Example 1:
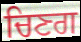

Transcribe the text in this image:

ਚਿਣਗ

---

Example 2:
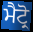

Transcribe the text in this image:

ਮੈਟ੍ਰੋ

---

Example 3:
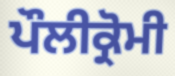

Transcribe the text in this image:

ਪੌਲੀਕ੍ਰੋਮੀ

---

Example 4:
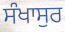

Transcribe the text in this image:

ਸੰਖਾਸੁਰ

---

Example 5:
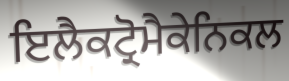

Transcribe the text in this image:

ਇਲੈਕਟ੍ਰੋਮੈਕੇਨਿਕਲ